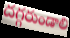
దగ్గరుండాలి